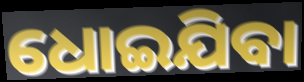
ଧୋଇଯିବା